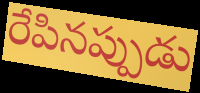
రేపినప్పుడు